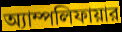
অ্যাম্পলিফায়ার